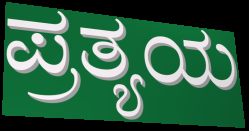
ಪ್ರತ್ಯಯ